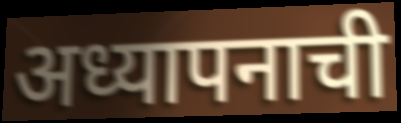
अध्यापनाची